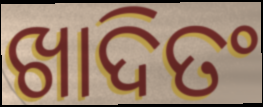
ଖାଦିତଂ